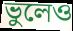
ভুলেও